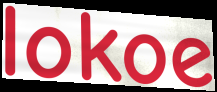
lokoe